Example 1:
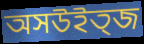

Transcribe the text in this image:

অসউইত্জ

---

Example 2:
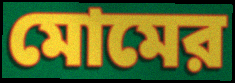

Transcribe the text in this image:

মোমের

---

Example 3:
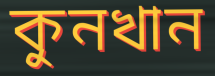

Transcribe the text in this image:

কুনখান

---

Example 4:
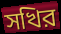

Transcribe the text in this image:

সখির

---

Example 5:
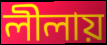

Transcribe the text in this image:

লীলায়